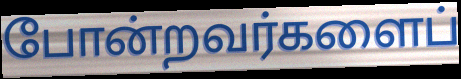
போன்றவர்களைப்